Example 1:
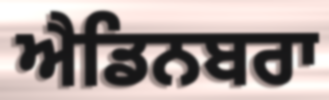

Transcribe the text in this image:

ਐਡਿਨਬਰਾ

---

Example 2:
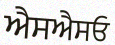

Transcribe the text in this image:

ਐਸਐਸਓ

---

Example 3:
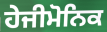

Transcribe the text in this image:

ਹੇਜੀਮੋਨਿਕ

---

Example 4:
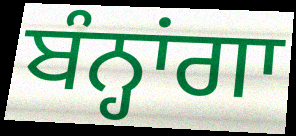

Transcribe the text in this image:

ਬੰਨ੍ਹਾਂਗਾ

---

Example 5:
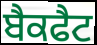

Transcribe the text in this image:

ਬੈਕਫੈਟ